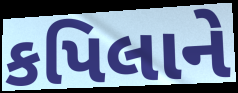
કપિલાને